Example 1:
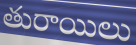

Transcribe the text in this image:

తురాయిలు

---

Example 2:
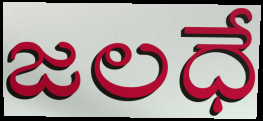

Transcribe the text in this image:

జలధే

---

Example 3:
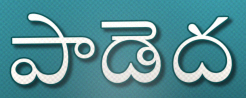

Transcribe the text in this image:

పాడెద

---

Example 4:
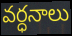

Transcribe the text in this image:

వర్ధనాలు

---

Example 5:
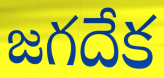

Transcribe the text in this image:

జగదేక